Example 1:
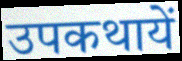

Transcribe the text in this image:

उपकथायें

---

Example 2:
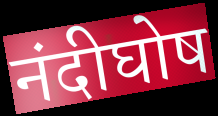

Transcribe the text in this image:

नंदीघोष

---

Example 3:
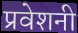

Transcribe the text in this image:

प्रवेशनी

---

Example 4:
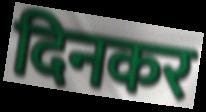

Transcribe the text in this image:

दिनकर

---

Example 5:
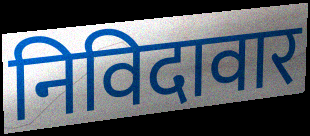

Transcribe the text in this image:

निविदावार